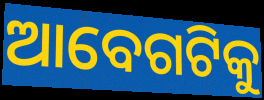
ଆବେଗଟିକୁ